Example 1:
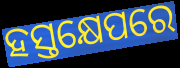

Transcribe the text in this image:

ହସ୍ତକ୍ଷେପରେ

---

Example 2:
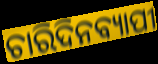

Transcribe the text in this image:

ଚାରିଦିନବ୍ୟାପୀ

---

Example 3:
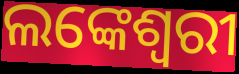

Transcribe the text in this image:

ଲଙ୍କେଶ୍ଵରୀ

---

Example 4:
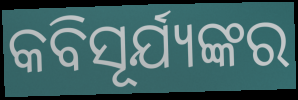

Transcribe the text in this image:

କବିସୂର୍ଯ୍ୟଙ୍କର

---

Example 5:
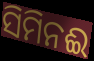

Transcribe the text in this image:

ସିମିନଈ